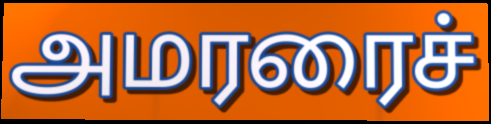
அமரரைச்